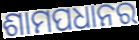
ଶାମପଧାନର